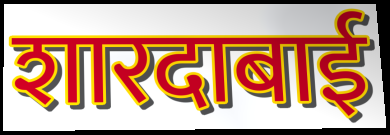
शारदाबाई